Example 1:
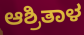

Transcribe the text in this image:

ಆಶ್ರಿತಾಳ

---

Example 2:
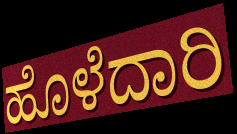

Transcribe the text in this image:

ಹೊಳೆದಾರಿ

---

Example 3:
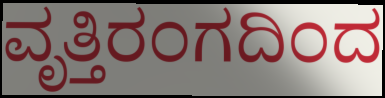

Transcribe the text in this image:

ವೃತ್ತಿರಂಗದಿಂದ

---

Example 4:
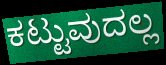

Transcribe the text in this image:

ಕಟ್ಟುವುದಲ್ಲ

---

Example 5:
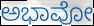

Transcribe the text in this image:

ಅಭಾವೋ